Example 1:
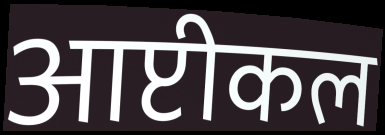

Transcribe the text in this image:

आप्टीकल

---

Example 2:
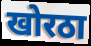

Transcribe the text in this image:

खोरठा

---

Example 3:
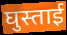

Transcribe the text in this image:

घुस्ताई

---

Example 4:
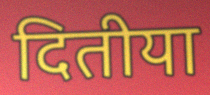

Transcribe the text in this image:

दितीया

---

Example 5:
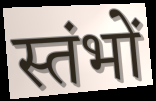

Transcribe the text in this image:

स्तंभों